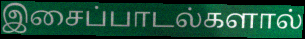
இசைப்பாடல்களால்